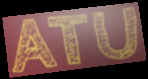
ATU